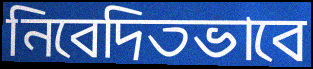
নিবেদিতভাবে